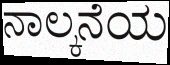
ನಾಲ್ಕನೆಯ